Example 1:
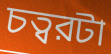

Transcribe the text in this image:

চত্বরটা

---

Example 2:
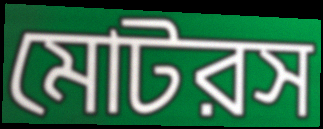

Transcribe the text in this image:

মোটরস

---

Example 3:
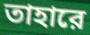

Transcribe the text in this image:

তাহারে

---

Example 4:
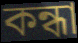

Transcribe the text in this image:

কন্ধা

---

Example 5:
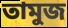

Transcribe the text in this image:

তামুজ